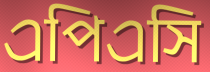
এপিএসি